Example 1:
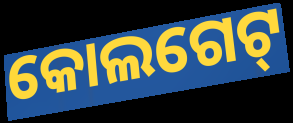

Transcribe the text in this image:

କୋଲଗେଟ୍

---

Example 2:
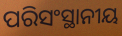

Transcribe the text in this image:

ପରିସଂସ୍ଥାନୀୟ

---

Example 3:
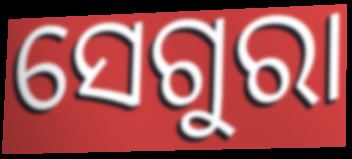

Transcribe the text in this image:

ସେଗୁରା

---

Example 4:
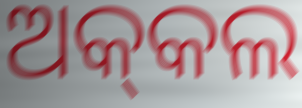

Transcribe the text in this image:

ଅକ୍‌କଲ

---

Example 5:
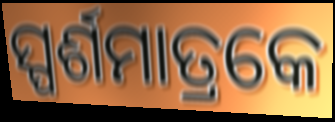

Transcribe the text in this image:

ସ୍ପର୍ଶମାତ୍ରକେ